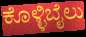
ಕೊಳ್ಳಿಬೈಲು